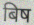
बिष